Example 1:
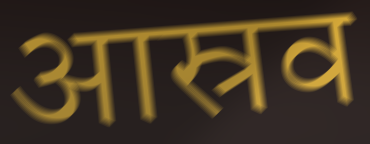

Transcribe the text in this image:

आस्रव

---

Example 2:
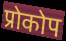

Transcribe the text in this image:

प्रोकोप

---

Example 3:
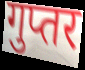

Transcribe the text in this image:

गुप्तर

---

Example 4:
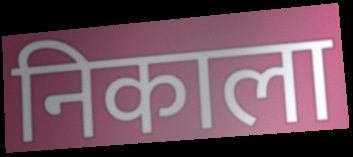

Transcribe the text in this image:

निकाला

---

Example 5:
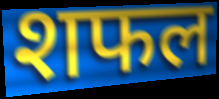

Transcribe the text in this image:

शफल